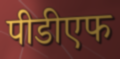
पीडीएफ